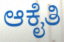
ಆಕೈತಿ